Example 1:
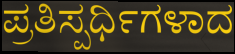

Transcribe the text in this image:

ಪ್ರತಿಸ್ಪರ್ಧಿಗಳಾದ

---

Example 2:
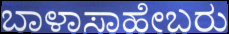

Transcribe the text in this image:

ಬಾಳಾಸಾಹೇಬರು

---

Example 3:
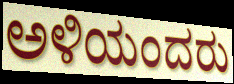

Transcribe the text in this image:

ಅಳಿಯಂದರು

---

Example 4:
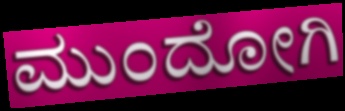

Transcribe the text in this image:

ಮುಂದೋಗಿ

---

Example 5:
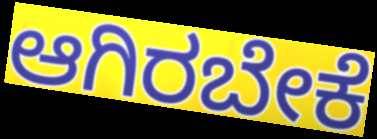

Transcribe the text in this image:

ಆಗಿರಬೇಕೆ